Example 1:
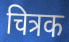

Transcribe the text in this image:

चित्रक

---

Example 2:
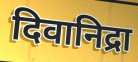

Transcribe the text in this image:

दिवानिद्रा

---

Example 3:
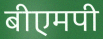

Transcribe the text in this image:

बीएमपी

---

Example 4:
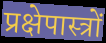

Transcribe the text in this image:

प्रक्षेपास्त्रों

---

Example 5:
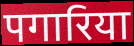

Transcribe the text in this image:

पगारिया